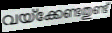
വയ്‌ക്കേണ്ടതുണ്ട്